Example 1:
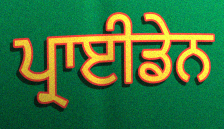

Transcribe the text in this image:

ਪ੍ਰਾਈਡੇਨ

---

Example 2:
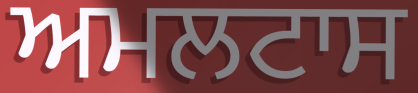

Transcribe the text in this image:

ਅਮਲਟਾਸ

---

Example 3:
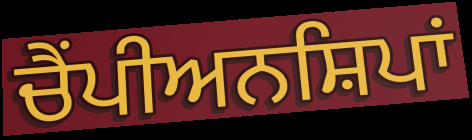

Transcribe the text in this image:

ਚੈਂਪੀਅਨਸ਼ਿਪਾਂ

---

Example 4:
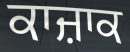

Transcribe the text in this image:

ਕਾਜ਼ਾਕ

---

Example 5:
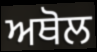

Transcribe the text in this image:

ਅਥੋਲ